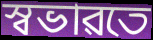
স্বভাৱতে